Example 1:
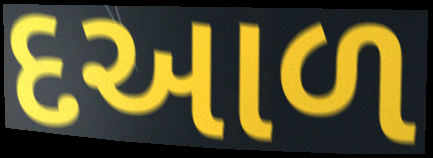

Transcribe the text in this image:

દઆળ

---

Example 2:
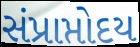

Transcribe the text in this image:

સંપ્રાપ્તોદય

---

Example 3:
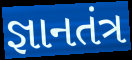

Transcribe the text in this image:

જ્ઞાનતંત્ર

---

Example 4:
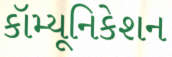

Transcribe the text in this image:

કૉમ્યૂનિકેશન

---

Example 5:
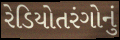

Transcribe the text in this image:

રેડિયોતરંગોનું